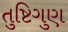
તુષ્ટિગુણ